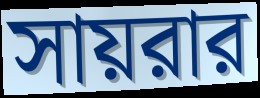
সায়রার